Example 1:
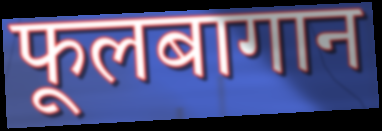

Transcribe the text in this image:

फूलबागान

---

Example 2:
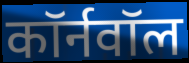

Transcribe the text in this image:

कॉर्नवॉल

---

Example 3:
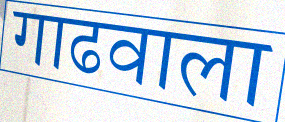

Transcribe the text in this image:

गाढवाला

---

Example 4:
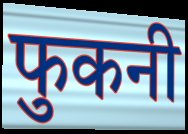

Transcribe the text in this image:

फुकनी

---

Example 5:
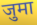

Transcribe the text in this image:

जुमा